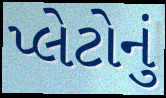
પ્લેટોનું